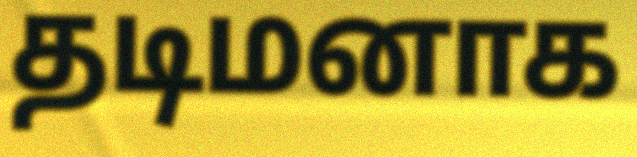
தடிமனாக